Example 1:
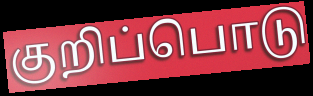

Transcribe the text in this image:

குறிப்பொடு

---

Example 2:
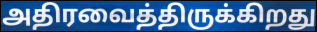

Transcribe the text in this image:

அதிரவைத்திருக்கிறது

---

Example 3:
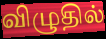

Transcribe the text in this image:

விழுதில்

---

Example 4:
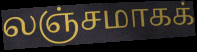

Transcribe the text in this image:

லஞ்சமாகக்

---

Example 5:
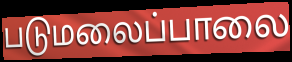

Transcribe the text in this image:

படுமலைப்பாலை